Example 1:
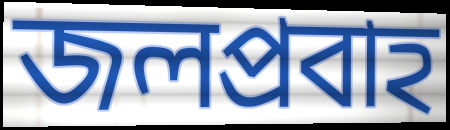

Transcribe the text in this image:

জলপ্ৰবাহ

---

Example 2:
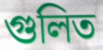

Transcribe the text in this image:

গুলিত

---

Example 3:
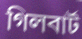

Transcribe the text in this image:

গিলবাৰ্ট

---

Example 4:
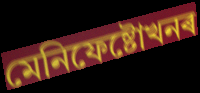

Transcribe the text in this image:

মেনিফেষ্টোখনৰ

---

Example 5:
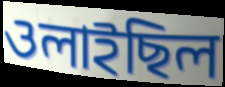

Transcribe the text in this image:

ওলাইছিল